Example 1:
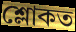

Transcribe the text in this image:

শ্লোকত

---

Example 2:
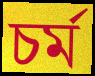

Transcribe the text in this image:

চৰ্ম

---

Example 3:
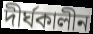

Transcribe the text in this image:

দীৰ্ঘকালীন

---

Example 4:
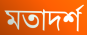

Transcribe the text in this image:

মতাদৰ্শ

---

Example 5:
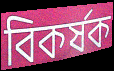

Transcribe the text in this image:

বিকৰ্ষক